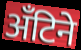
अँटिने